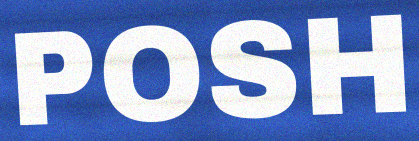
POSH